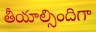
తీయాల్సిందిగా